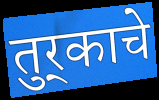
तुर्काचे